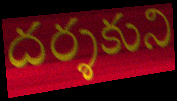
దర్శకుని